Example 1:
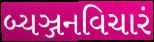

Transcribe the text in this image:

બ્યઞ્જનવિચારં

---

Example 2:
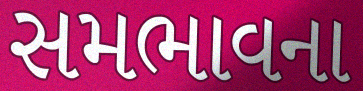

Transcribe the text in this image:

સમભાવના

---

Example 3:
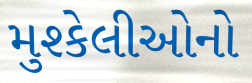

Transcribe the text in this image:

મુશ્કેલીઓનો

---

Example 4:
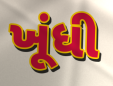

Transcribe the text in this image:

ખૂંધી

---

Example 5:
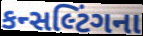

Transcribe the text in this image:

કન્સલ્ટિંગના